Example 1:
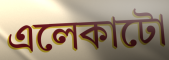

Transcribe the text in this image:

এলেকাটো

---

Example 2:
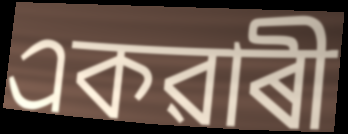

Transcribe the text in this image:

একৱাৰী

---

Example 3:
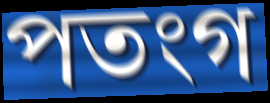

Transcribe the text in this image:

পতংগ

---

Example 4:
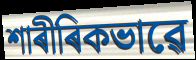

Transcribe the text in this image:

শাৰীৰিকভাৱে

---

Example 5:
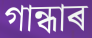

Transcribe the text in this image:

গান্ধাৰ